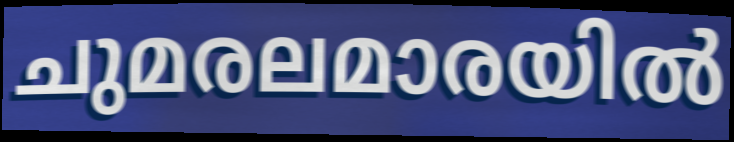
ചുമരലമാരയിൽ